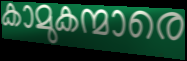
കാമുകന്മാരെ